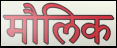
मौलिक